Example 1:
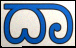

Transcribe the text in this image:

ದಾ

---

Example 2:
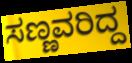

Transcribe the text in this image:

ಸಣ್ಣವರಿದ್ದ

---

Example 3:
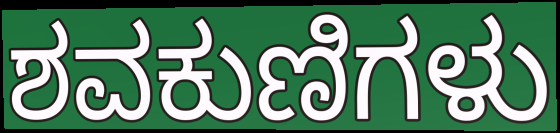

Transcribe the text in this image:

ಶವಕುಣಿಗಳು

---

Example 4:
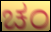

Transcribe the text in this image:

ಚಂ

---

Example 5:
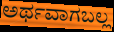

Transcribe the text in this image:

ಅರ್ಥವಾಗಬಲ್ಲ